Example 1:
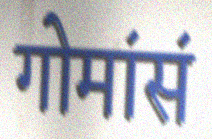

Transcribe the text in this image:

गोमांसं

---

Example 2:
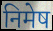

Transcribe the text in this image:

निमेष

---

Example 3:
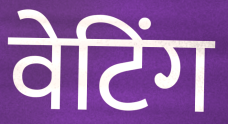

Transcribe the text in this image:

वेटिंग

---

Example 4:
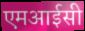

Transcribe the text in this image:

एमआईसी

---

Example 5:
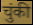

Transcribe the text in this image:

चुंकी